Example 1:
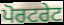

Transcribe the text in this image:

ਪੋਰਟਰੇਟ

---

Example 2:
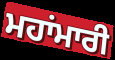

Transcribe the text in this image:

ਮਹਾਂਮਾਰੀ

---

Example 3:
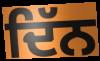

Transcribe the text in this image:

ਦਿੱਨ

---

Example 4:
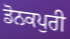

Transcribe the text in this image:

ਡੋਨਕਪੁਰੀ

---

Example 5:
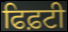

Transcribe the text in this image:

ਫਿਫ਼ਟੀ